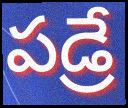
పడ్రే